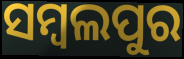
ସମ୍ବଲପୁର